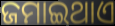
ଜମାଇଥାଏ